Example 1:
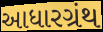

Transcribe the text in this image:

આધારગ્રંથ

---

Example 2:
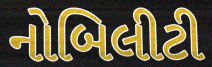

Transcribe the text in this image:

નોબિલીટી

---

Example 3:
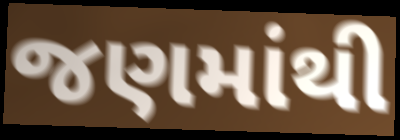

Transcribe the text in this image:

જણમાંથી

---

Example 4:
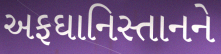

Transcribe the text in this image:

અફઘાનિસ્તાનને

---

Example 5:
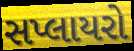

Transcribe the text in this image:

સપ્લાયરો